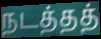
நடத்தத்